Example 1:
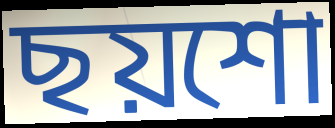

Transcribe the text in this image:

ছয়শো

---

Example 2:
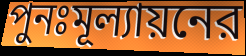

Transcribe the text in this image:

পুনঃমূল্যায়নের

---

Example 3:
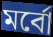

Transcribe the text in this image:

মর্বো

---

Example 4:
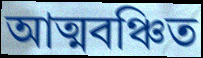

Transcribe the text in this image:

আত্মবঞ্চিত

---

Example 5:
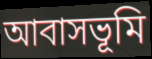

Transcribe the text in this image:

আবাসভূমি